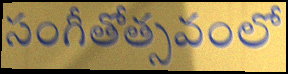
సంగీతోత్సవంలో